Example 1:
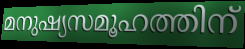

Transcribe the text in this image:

മനുഷ്യസമൂഹത്തിന്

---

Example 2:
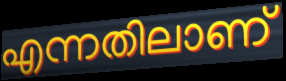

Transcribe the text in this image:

എന്നതിലാണ്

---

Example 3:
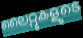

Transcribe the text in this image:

ലൈറ്റുകളുടെ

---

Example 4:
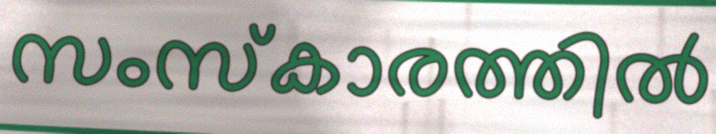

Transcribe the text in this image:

സംസ്കാരത്തിൽ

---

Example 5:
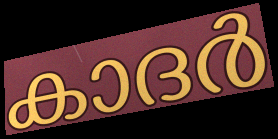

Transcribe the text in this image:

കാദർ